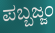
ಪಬ್ಬಜ್ಜಂ